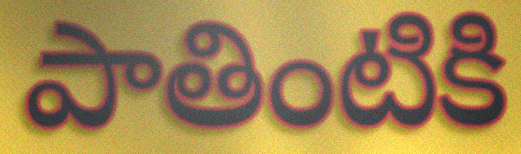
పాతింటికి